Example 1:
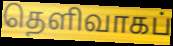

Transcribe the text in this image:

தெளிவாகப்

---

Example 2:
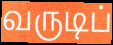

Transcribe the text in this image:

வருடிப்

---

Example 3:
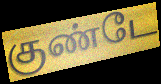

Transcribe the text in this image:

குண்டே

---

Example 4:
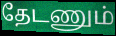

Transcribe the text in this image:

தேடணும்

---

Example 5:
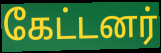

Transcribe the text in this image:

கேட்டனர்